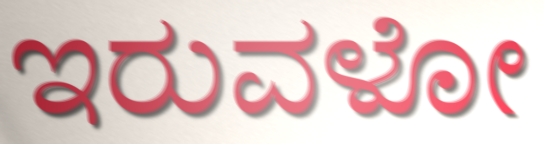
ಇರುವಳೋ